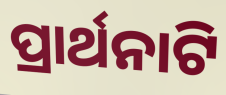
ପ୍ରାର୍ଥନାଟି